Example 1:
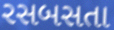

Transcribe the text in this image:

રસબસતા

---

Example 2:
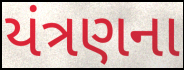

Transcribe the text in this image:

યંત્રણના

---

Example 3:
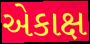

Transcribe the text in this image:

એકાક્ષ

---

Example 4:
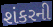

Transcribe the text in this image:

શંકરની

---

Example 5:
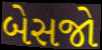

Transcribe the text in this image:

બેસજો